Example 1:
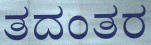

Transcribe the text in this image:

ತದಂತರ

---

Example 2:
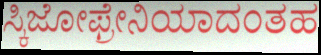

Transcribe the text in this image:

ಸ್ಕಿಜೋಫ್ರೇನಿಯಾದಂತಹ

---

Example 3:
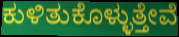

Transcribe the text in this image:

ಕುಳಿತುಕೊಳ್ಳುತ್ತೇವೆ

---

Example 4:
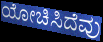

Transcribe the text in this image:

ಯೋಚಿಸಿದೆವು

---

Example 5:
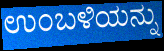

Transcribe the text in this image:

ಉಂಬಳಿಯನ್ನು